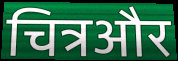
चित्रऔर